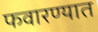
फवारण्यात